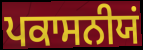
ਪਕਾਸਨੀਯਂ